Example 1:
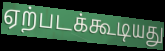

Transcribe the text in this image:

ஏற்படக்கூடியது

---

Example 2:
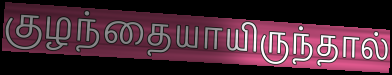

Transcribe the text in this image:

குழந்தையாயிருந்தால்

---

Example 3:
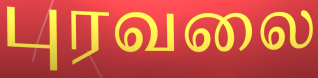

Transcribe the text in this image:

புரவலை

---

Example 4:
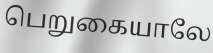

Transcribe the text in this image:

பெறுகையாலே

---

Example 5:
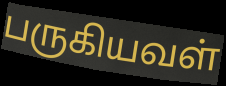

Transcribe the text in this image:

பருகியவள்